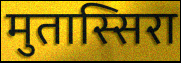
मुतास्सिरा